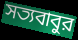
সত্যবাবুর